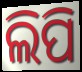
ଲିପି